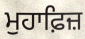
ਮੁਹਾਫ਼ਿਜ਼